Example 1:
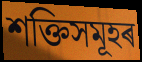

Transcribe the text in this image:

শক্তিসমূহৰ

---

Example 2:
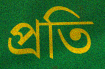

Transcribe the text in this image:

প্ৰতি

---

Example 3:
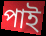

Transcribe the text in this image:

পাই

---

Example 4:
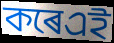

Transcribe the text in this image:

কৰেএই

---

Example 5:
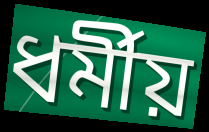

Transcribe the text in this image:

ধৰ্মীয়